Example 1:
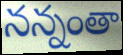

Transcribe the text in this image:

నన్నంతా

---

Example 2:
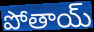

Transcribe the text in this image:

పోతాయ్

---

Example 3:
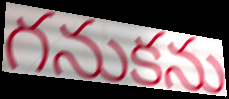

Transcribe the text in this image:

గనుకను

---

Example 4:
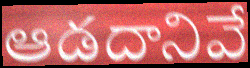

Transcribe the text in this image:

ఆడదానివే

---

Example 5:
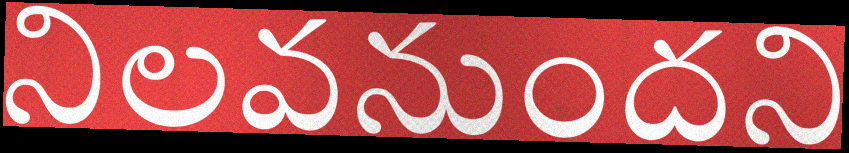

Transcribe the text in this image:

నిలవనుందని